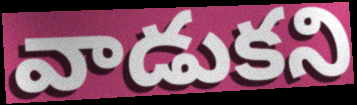
వాడుకని